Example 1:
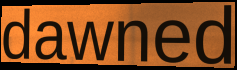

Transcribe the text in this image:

dawned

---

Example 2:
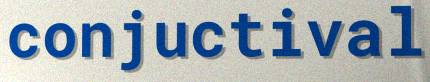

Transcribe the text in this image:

conjuctival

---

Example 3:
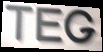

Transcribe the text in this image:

TEG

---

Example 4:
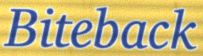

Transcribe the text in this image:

Biteback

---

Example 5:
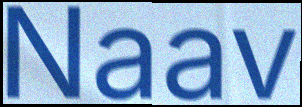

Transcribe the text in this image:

Naav